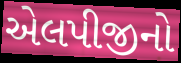
એલપીજીનો